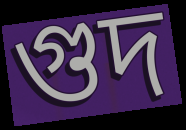
গুদ